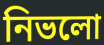
নিভলো